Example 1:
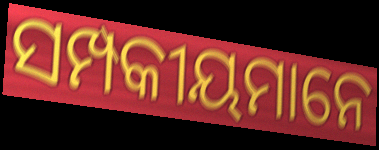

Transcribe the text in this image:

ସମ୍ପକୀୟମାନେ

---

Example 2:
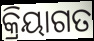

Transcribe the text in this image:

କ୍ରିୟାଗତ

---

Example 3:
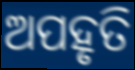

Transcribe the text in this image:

ଅପହୃତି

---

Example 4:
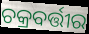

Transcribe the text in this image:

ଚକ୍ରବର୍ତ୍ତୀର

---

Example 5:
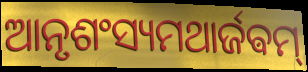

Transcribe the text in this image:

ଆନୃଶଂସ୍ୟମଥାର୍ଜଵମ୍